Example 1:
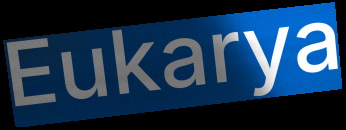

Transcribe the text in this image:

Eukarya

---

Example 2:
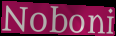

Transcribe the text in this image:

Noboni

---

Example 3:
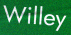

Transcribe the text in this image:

Willey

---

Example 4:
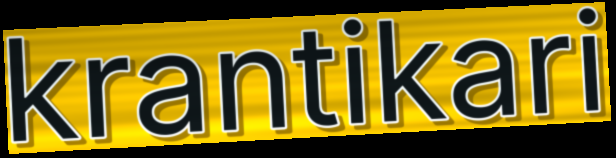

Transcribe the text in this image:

krantikari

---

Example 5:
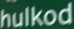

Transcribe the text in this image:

hulkod